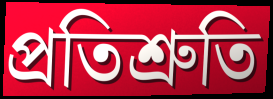
প্ৰতিশ্ৰুতি